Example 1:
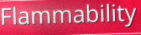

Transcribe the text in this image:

Flammability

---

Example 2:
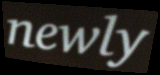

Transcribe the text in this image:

newly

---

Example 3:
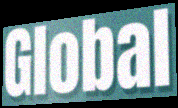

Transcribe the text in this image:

Global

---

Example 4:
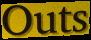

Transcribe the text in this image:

Outs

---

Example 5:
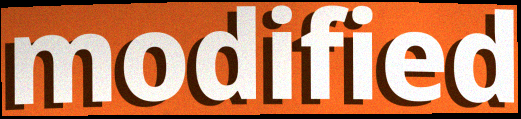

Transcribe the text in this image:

modified